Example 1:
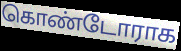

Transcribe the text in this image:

கொண்டோராக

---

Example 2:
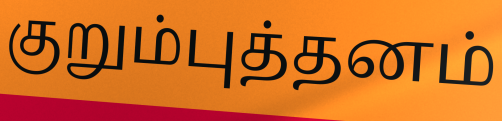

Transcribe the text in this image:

குறும்புத்தனம்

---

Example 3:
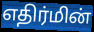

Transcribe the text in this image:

எதிர்மின்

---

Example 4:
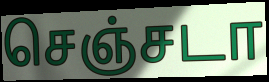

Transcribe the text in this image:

செஞ்சடா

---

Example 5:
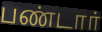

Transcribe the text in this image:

பண்டார்